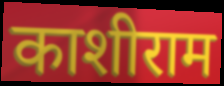
काशीराम